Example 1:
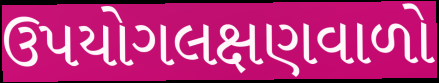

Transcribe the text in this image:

ઉપયોગલક્ષણવાળો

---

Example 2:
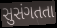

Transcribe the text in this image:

સુસંગતતા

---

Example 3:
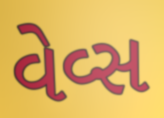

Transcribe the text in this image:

વેવ્સ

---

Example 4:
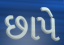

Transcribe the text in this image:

છાપે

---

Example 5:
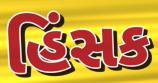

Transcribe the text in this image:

હિંસક